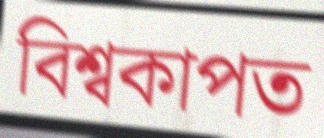
বিশ্বকাপত